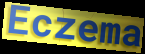
Eczema